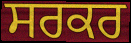
ਸਰਕਰ